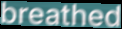
breathed